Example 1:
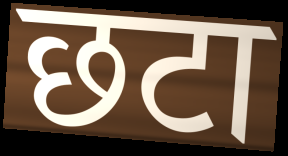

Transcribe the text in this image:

छटा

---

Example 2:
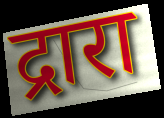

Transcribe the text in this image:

द्रारा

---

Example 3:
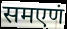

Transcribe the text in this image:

समएणं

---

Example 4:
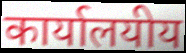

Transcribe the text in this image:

कार्यालयीय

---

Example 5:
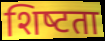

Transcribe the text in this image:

शिष्‍टता